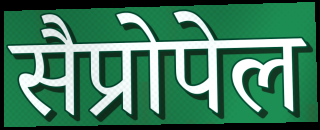
सैप्रोपेल